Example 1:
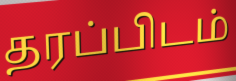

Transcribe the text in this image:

தரப்பிடம்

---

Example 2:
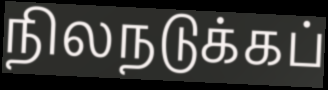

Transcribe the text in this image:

நிலநடுக்கப்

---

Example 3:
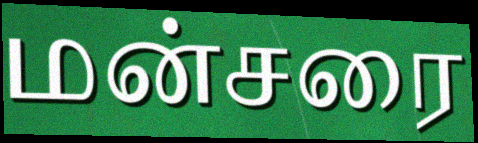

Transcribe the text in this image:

மன்சரை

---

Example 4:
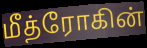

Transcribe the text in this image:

மீத்ரோகின்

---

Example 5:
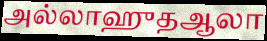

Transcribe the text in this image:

அல்லாஹுதஆலா